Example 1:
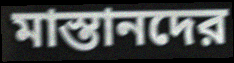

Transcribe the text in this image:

মাস্তানদের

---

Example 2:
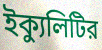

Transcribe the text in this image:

ইক্যুলিটির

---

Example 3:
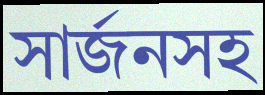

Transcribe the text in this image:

সার্জনসহ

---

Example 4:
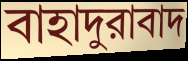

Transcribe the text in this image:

বাহাদুরাবাদ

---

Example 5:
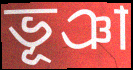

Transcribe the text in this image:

ভূঞা